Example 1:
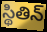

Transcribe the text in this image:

స్థితిన్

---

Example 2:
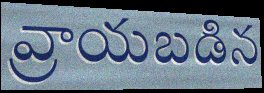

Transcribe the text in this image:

వ్రాయబడిన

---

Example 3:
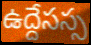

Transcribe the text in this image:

ఉద్దేసస్స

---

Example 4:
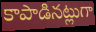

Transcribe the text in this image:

కాపాడినట్లుగా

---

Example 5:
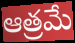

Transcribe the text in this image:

ఆత్రమే